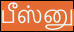
பீஸ்னு